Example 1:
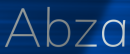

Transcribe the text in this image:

Abza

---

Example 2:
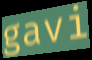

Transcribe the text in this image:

gavi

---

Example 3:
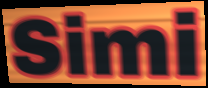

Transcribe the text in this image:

Simi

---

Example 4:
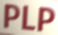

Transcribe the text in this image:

PLP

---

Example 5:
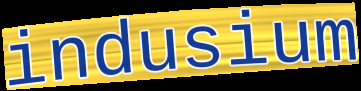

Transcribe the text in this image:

indusium